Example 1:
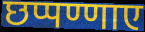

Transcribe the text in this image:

छप्पण्णाए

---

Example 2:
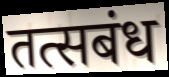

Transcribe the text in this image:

तत्सबंध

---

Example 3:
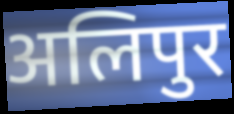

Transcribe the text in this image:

अलिपुर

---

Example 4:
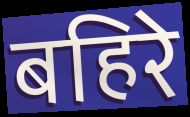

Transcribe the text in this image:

बहिरे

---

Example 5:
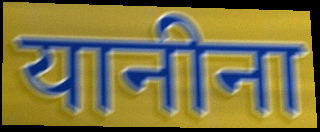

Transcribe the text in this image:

यानीना